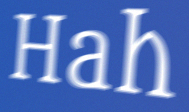
Hah